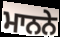
ਮਾਨਨੇ